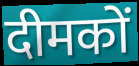
दीमकों